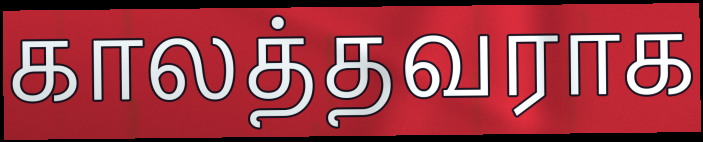
காலத்தவராக